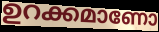
ഉറക്കമാണോ